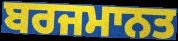
ਬਰਜਮਾਨਤ